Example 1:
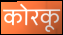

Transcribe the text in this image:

कोरकू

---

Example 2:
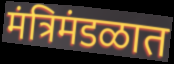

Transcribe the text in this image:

मंत्रिमंडळात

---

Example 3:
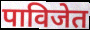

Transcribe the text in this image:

पाविजेत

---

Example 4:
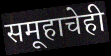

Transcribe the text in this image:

समूहाचेही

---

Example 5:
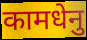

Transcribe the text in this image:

कामधेनु